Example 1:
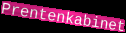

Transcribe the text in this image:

Prentenkabinet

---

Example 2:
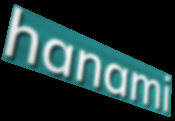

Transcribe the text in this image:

hanami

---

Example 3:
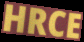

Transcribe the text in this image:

HRCE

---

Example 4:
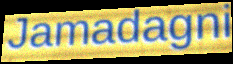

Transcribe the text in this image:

Jamadagni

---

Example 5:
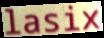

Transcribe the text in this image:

lasix